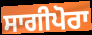
ਸਾਗੀਪੋਰਾ